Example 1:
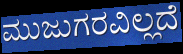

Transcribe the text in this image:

ಮುಜುಗರವಿಲ್ಲದೆ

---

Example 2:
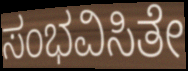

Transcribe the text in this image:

ಸಂಭವಿಸಿತೇ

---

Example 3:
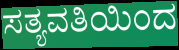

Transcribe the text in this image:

ಸತ್ಯವತಿಯಿಂದ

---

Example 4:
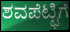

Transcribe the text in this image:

ಶವಪೆಟ್ಟಿಗೆ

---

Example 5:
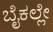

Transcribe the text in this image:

ಬೈಕಲ್ಲೇ